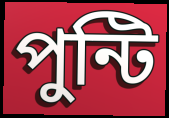
পুন্টি